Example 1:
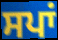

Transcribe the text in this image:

ਸਪਾਂ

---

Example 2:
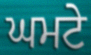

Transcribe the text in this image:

ਘਮਟੇ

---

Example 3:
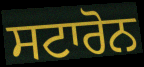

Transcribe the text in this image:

ਸਟਾਰੋਨ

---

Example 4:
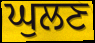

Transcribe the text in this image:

ਘੁਲਣ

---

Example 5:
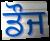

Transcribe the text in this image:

ਡੌਜ